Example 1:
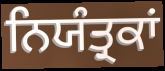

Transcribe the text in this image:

ਨਿਯੰਤ੍ਰਕਾਂ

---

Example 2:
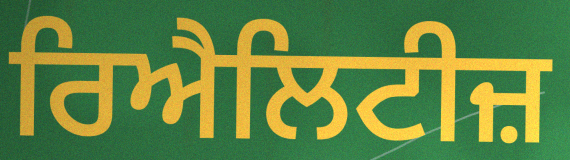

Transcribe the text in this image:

ਰਿਐਲਿਟੀਜ਼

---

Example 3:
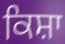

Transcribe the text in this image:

ਕਿਸ਼ਾ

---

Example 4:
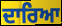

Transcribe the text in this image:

ਦਾਰਿਆ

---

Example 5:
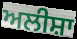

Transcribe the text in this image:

ਅਲੀਸ਼ਾ